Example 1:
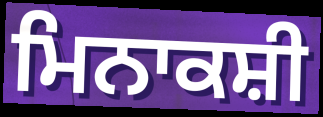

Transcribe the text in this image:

ਮਿਨਾਕਸ਼ੀ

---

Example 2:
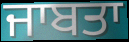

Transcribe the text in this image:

ਜਾਬਤਾ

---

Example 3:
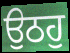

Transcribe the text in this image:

ਉਠਹੁ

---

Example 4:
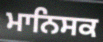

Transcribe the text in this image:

ਮਾਨਿਸਕ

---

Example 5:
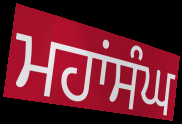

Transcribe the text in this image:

ਮਹਾਂਸੰਘ